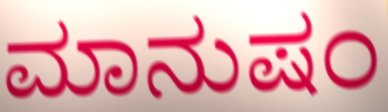
ಮಾನುಷಂ